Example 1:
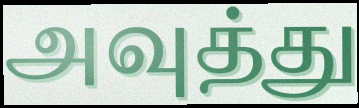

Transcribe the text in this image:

அவுத்து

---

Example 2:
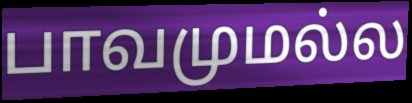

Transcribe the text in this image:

பாவமுமல்ல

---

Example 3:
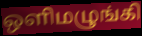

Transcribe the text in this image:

ஒளிமழுங்கி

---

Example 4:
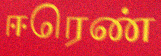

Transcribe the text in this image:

ஈரெண்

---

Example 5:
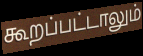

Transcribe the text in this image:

கூறப்பட்டாலும்